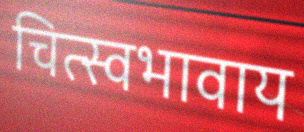
चित्स्वभावाय